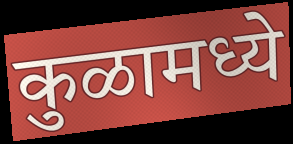
कुळामध्ये